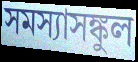
সমস্যাসঙ্কুল